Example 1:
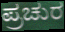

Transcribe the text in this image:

ಪ್ರಚುರ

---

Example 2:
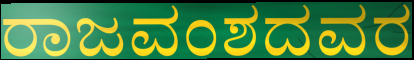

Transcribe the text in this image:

ರಾಜವಂಶದವರ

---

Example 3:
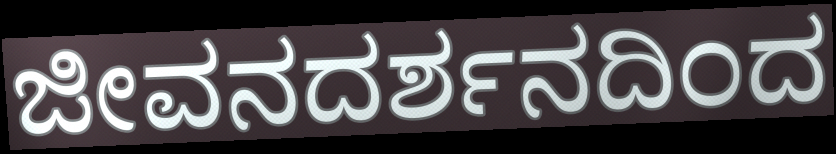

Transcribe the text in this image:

ಜೀವನದರ್ಶನದಿಂದ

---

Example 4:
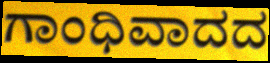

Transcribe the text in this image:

ಗಾಂಧಿವಾದದ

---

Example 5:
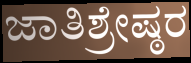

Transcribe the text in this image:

ಜಾತಿಶ್ರೇಷ್ಠರ